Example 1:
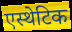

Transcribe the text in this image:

एस्थेटिक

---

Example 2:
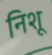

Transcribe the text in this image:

निशू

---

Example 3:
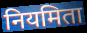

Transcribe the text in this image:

नियमिता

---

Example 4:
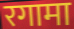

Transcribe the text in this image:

रगामा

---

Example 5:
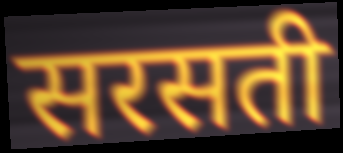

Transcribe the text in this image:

सरसती